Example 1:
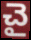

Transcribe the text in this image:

చై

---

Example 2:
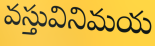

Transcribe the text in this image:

వస్తువినిమయ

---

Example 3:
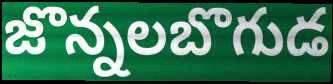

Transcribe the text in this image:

జొన్నలబొగుడ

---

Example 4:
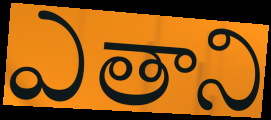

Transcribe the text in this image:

ఎతాని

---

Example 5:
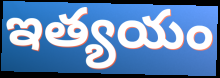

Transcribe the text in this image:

ఇత్యయం